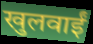
खुलवाईं